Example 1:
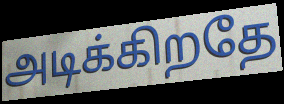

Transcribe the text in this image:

அடிக்கிறதே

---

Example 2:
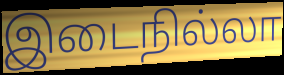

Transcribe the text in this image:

இடைநில்லா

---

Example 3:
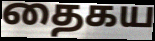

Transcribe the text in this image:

தைகய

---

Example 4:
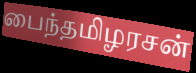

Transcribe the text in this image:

பைந்தமிழரசன்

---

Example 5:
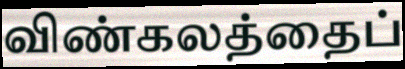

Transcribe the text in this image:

விண்கலத்தைப்